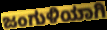
ಜಂಗುಳಿಯಾಗಿ